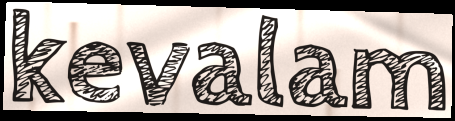
kevalam